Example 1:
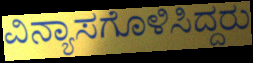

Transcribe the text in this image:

ವಿನ್ಯಾಸಗೊಳಿಸಿದ್ದರು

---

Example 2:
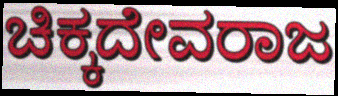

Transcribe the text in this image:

ಚಿಕ್ಕದೇವರಾಜ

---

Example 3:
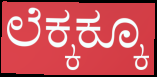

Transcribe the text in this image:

ಲೆಕ್ಕಕ್ಕೂ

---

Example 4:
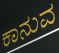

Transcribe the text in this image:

ಕಾನುವ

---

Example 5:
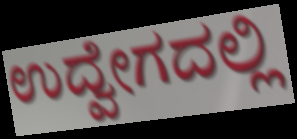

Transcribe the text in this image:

ಉದ್ವೇಗದಲ್ಲಿ